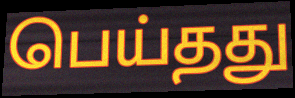
பெய்தது